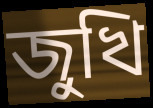
জুখি